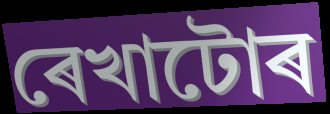
ৰেখাটোৰ